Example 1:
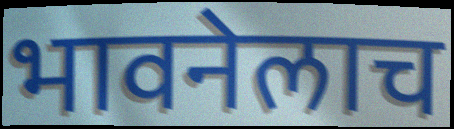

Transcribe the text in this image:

भावनेलाच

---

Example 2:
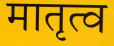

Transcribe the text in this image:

मातृत्व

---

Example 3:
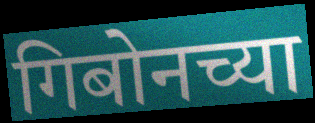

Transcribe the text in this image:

गिबोनच्या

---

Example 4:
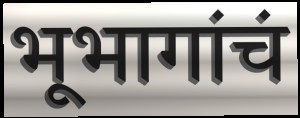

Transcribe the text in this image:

भूभागांचं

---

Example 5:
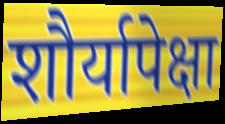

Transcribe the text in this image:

शौर्यापेक्षा